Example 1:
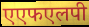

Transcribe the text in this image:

एएफएलपी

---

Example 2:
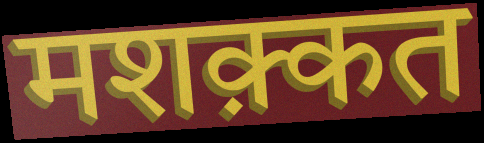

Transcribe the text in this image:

मशक़्कत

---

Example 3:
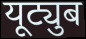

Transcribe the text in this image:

यूट्युब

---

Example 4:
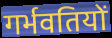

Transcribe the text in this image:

गर्भवतियों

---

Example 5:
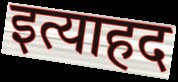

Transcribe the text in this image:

इत्याहद